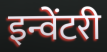
इन्वेंटरी